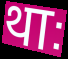
थाः